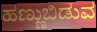
ಹಣ್ಣುಬಿಡುವ